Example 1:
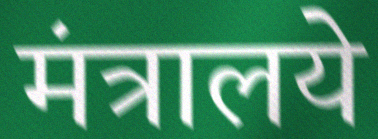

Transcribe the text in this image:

मंत्रालये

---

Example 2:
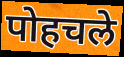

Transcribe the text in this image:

पोहचले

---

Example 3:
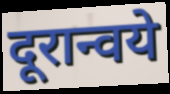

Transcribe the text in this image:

दूरान्वये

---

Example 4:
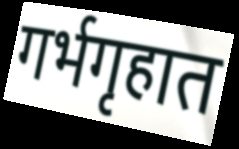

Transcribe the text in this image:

गर्भगृहात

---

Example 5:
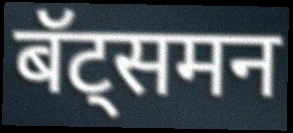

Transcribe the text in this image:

बॅट्समन